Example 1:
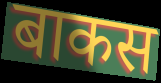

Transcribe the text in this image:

बाकस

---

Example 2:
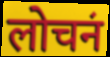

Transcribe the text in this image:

लोचनं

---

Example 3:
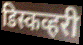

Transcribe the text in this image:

डिस्कव्हरी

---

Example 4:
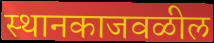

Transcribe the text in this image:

स्थानकाजवळील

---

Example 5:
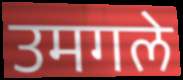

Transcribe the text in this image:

उमगले